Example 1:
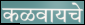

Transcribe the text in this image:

कळवायचे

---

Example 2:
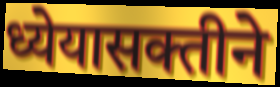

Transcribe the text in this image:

ध्येयासक्तीने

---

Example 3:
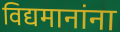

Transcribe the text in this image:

विद्यमानांना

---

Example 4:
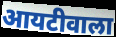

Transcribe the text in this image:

आयटीवाला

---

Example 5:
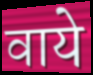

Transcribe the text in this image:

वाये